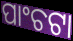
ପାଂଚଟା